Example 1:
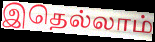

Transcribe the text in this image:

இதெல்லாம்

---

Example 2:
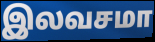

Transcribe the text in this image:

இலவசமா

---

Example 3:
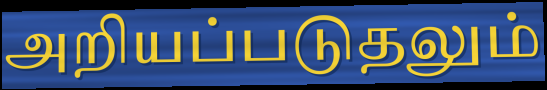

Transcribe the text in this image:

அறியப்படுதலும்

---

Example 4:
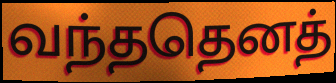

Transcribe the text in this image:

வந்ததெனத்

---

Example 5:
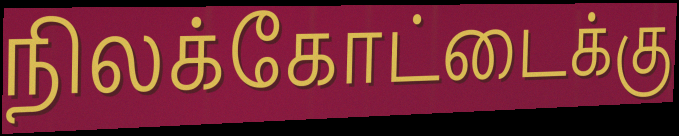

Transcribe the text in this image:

நிலக்கோட்டைக்கு